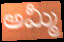
అమ్మీ